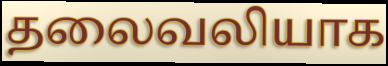
தலைவலியாக